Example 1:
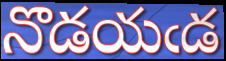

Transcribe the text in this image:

నొడయఁడ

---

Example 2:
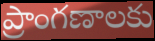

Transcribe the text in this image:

ప్రాంగణాలకు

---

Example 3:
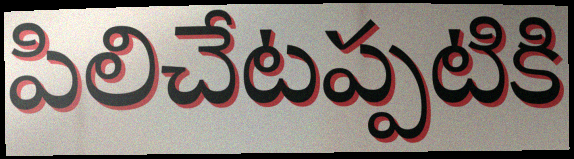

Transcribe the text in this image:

పిలిచేటప్పటికి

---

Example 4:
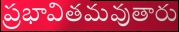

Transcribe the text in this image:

ప్రభావితమవుతారు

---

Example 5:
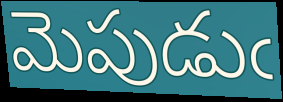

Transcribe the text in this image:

మెపుడుఁ